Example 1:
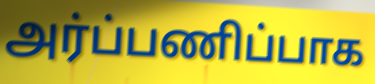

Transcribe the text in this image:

அர்ப்பணிப்பாக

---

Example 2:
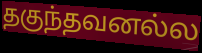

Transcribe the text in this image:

தகுந்தவனல்ல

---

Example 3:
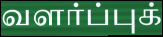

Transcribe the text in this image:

வளர்ப்புக்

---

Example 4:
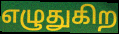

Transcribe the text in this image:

எழுதுகிற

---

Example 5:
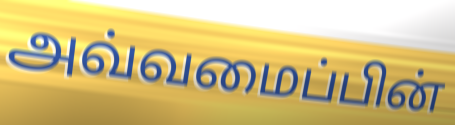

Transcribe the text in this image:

அவ்வமைப்பின்